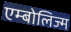
एम्बोलिज्म